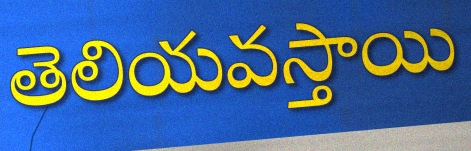
తెలియవస్తాయి